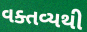
વક્તવ્યથી